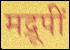
मद्रूपीं